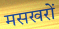
मसखरों